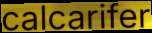
calcarifer